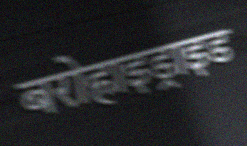
बरोहाइड्राइड